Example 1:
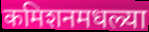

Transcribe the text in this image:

कमिशनमधल्या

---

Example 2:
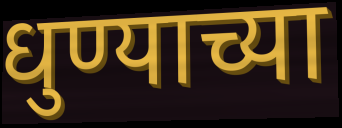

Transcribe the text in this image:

धुण्याच्या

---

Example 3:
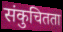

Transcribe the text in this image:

संकुचितता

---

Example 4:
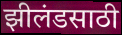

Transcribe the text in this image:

झीलंडसाठी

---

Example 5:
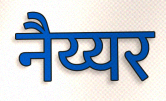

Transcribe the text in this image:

नैय्यर